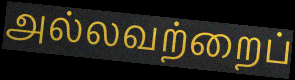
அல்லவற்றைப்